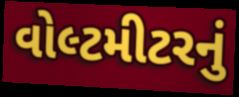
વોલ્ટમીટરનું